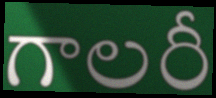
గాలరీ